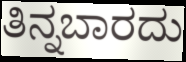
ತಿನ್ನಬಾರದು